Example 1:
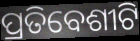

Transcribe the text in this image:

ପ୍ରତିବେଶୀଟି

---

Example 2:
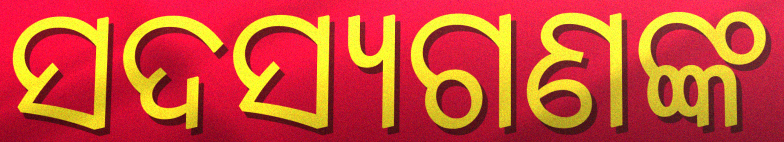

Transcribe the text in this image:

ସଦସ୍ୟଗଣଙ୍କ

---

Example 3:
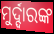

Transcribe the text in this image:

ମୁର୍ଦ୍ଦାରଙ୍କ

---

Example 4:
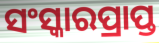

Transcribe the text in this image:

ସଂସ୍କାରପ୍ରାପ୍ତ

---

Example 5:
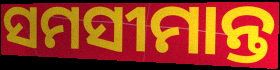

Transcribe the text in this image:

ସମସୀମାନ୍ତ